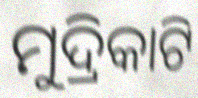
ମୁଦ୍ରିକାଟି